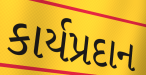
કાર્યપ્રદાન